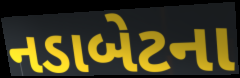
નડાબેટના